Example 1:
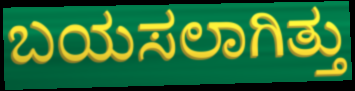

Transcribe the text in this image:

ಬಯಸಲಾಗಿತ್ತು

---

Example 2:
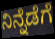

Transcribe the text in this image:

ನಿನ್ನೆಡೆಗೆ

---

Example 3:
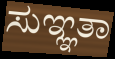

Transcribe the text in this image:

ಸುಞ್ಞತಾ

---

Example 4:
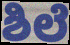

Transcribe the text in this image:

ಶಿಲೆ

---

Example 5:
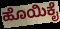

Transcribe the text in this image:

ಹೊಯಿಕೈ